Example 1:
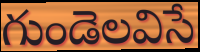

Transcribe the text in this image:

గుండెలవిసే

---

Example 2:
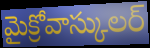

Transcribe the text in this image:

మైక్రోవాస్కులర్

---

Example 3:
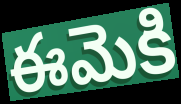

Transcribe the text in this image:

ఈమెకి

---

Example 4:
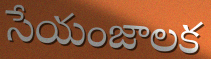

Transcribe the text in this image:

సేయంజాలక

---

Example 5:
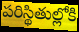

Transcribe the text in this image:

పరిస్థితుల్లోకి